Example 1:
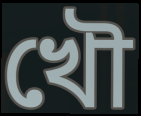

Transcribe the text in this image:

খৌ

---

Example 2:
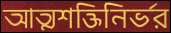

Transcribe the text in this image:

আত্মশক্তিনির্ভর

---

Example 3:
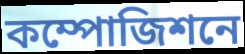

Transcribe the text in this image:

কম্পোজিশনে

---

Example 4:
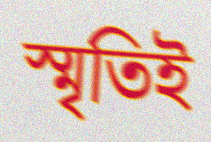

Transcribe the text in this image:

স্মৃতিই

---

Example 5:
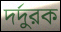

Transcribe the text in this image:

দর্দুরক